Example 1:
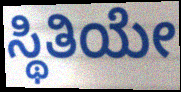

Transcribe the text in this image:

ಸ್ಥಿತಿಯೇ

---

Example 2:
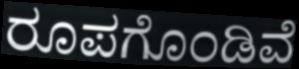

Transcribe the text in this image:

ರೂಪಗೊಂಡಿವೆ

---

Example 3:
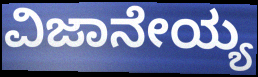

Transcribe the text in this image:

ವಿಜಾನೇಯ್ಯ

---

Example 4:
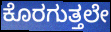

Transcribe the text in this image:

ಕೊರಗುತ್ತಲೇ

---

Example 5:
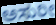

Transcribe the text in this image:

ಅಸುರೀ